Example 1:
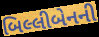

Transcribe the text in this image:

બિલ્લીબેનની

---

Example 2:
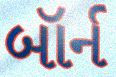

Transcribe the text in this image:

બૉર્ન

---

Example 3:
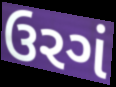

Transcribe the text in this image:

ઉરગં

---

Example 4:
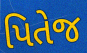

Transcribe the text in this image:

પિતેજ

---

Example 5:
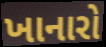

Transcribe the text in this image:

ખાનારો